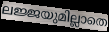
ലജ്ജയുമില്ലാതെ